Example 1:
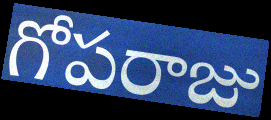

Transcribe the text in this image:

గోపరాజు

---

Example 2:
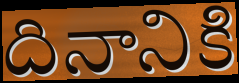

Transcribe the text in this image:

దినానికి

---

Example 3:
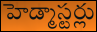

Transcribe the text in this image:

హెడ్మాస్టర్లు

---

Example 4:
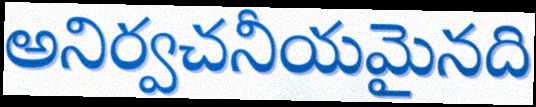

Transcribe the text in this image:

అనిర్వచనీయమైనది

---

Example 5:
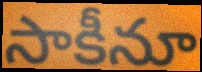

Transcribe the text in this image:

సాకీనూ